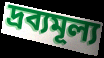
দ্রব্যমূল্য